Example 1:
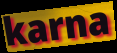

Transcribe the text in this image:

karna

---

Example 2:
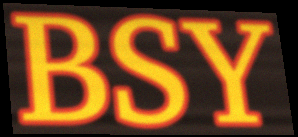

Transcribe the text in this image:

BSY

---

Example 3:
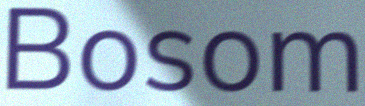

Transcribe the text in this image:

Bosom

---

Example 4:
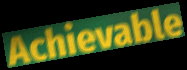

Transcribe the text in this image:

Achievable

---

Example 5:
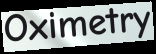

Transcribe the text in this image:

Oximetry